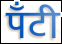
पॅंटी